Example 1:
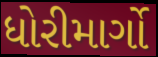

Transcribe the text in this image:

ધોરીમાર્ગો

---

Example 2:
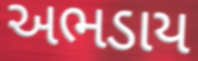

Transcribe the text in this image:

અભડાય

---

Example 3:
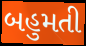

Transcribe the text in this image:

બહુમતી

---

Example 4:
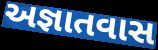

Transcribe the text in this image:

અજ્ઞાતવાસ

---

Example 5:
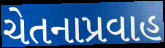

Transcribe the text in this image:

ચેતનાપ્રવાહ